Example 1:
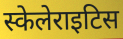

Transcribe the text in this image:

स्केलेराइटिस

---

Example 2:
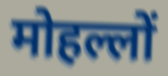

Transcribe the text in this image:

मोहल्लों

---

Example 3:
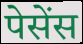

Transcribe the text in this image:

पेसेंस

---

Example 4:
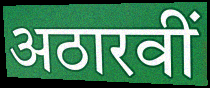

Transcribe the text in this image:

अठारवीं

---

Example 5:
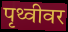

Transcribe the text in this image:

पृथ्वीवर